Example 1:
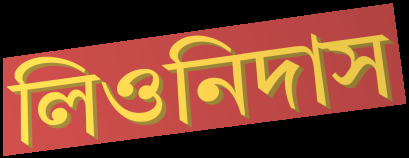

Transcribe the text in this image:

লিওনিদাস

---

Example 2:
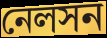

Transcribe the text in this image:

নেলসন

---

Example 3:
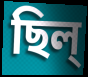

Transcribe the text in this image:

ছিল্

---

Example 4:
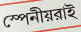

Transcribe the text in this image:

স্পেনীয়রাই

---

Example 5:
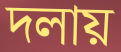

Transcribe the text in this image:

দলায়